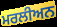
ਮਰਲੀਅਨ